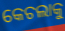
କେଚଲାକୁ